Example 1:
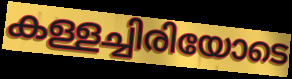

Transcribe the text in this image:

കള്ളച്ചിരിയോടെ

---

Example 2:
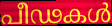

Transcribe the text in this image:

പീഢകൾ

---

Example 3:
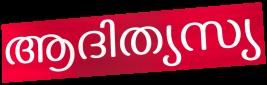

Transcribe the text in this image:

ആദിത്യസ്യ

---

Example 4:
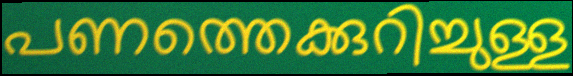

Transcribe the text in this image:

പണത്തെക്കുറിച്ചുള്ള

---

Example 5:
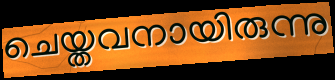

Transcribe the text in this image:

ചെയ്തവനായിരുന്നു